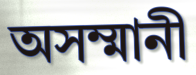
অসম্মানী